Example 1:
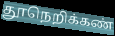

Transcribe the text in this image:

தூநெறிக்கண்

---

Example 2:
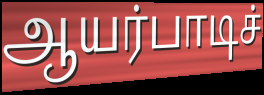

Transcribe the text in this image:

ஆயர்பாடிச்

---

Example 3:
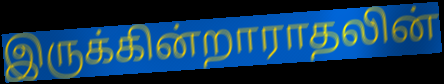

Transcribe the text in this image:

இருக்கின்றாராதலின்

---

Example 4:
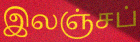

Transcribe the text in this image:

இலஞ்சப்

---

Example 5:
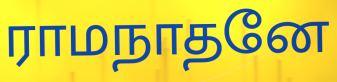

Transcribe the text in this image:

ராமநாதனே